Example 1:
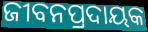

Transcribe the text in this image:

ଜୀବନପ୍ରଦାୟକ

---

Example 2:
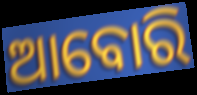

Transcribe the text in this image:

ଆବୋରି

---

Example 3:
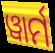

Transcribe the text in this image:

ୱାର୍ମ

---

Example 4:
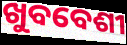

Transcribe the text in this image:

ଖୁବବେଶୀ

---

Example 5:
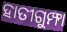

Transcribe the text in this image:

ହାତୀଗୁମ୍ଫା